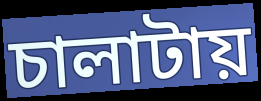
চালাটায়